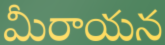
మీరాయన